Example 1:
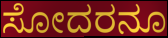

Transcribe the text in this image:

ಸೋದರನೂ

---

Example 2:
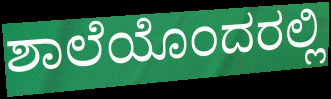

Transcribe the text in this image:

ಶಾಲೆಯೊಂದರಲ್ಲಿ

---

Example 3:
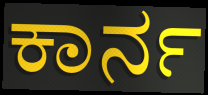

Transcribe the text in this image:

ಕಾರ್ನ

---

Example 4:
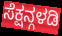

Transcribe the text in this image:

ಸೆಕ್ಷನ್ಗಳಡಿ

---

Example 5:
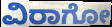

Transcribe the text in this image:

ವಿರಾಗೋ